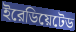
ইরেডিয়েটেড